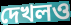
দেখলও